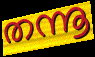
തന്നൂ